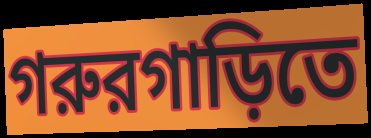
গরুরগাড়িতে